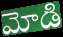
మోడి